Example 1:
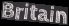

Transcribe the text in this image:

Britain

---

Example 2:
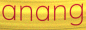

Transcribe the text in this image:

anang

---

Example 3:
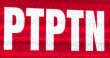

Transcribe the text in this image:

PTPTN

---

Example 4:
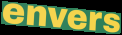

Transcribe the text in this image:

envers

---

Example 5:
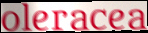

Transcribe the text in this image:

oleracea